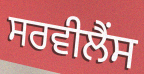
ਸਰਵੀਲੈਂਸ